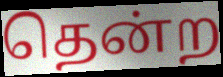
தென்ற